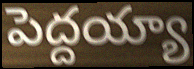
పెద్దయ్యా